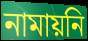
নামায়নি